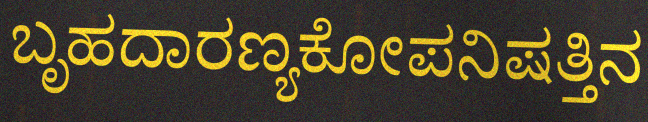
ಬೃಹದಾರಣ್ಯಕೋಪನಿಷತ್ತಿನ